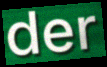
der